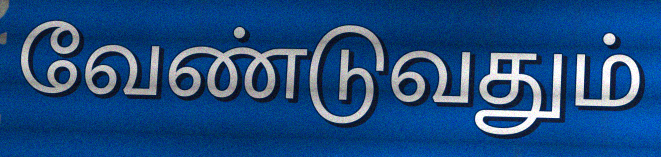
வேண்டுவதும்